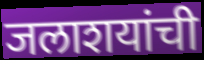
जलाशयांची